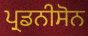
ਪ੍ਰਡਨੀਸੋਨ